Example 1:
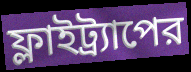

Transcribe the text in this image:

ফ্লাইট্র্যাপের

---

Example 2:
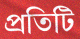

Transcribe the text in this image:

প্রতিটি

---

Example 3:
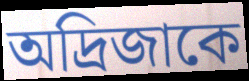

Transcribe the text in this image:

অদ্রিজাকে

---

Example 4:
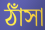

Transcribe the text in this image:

ঠাঁসা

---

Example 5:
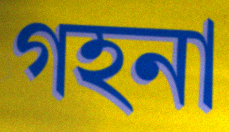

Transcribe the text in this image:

গহনা